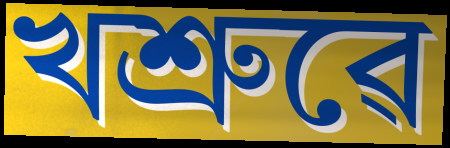
খশ্ৰুৱে